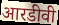
आरडीवी